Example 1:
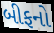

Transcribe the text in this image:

બીફનો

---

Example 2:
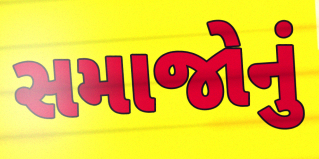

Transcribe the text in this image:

સમાજોનું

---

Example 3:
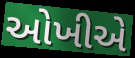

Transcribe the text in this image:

ઓખીએ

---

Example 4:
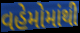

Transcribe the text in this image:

વહેમોમાંથી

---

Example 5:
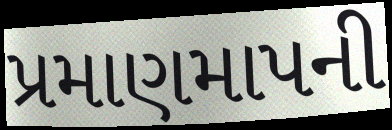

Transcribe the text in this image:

પ્રમાણમાપની